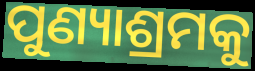
ପୁଣ୍ୟାଶ୍ରମକୁ